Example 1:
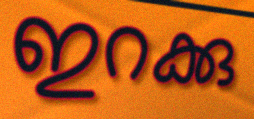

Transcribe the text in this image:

ഇറക്കു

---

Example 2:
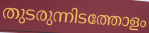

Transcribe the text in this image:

തുടരുന്നിടത്തോളം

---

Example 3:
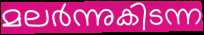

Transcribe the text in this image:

മലർന്നുകിടന്ന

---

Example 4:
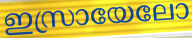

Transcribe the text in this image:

ഇസ്രായേലോ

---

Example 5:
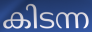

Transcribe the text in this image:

കിടന്ന